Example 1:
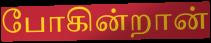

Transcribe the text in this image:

போகின்றான்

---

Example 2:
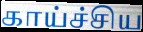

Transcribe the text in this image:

காய்ச்சிய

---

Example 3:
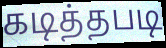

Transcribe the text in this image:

கடித்தபடி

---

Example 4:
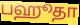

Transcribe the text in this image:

பஹூதா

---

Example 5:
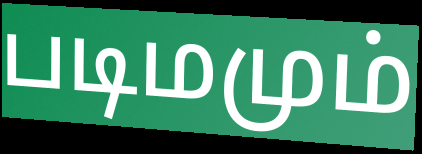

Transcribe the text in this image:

படிமமும்